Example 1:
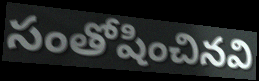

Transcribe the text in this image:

సంతోషించినవి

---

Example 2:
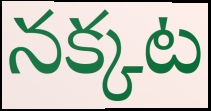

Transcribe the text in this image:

నక్కట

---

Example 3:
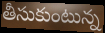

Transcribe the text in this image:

తీసుకుంటున్న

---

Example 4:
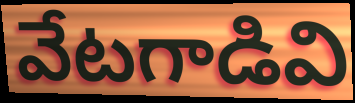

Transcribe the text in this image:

వేటగాడివి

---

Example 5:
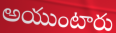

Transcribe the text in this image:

అయుంటారు